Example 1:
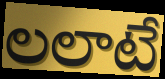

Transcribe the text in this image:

లలాటే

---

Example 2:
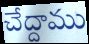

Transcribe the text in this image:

చేద్దాము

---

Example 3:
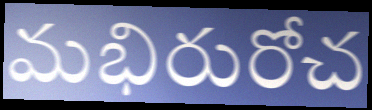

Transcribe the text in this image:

మభిరురోచ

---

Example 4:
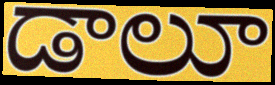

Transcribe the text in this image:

డాలూ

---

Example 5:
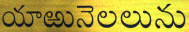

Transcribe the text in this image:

యాఱునెలలును